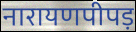
नारायणपीपड़